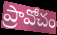
ప్రావోచం